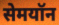
सेमयॉन